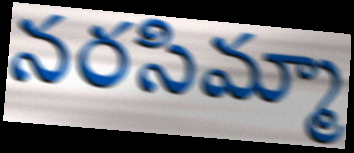
నరసిమ్మా